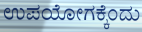
ಉಪಯೋಗಕ್ಕೆಂದು